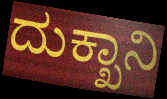
ದುಕ್ಖಾನಿ